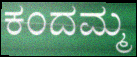
ಕಂದಮ್ಮ